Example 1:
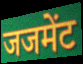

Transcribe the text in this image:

जजमेंट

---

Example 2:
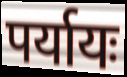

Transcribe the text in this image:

पर्यायः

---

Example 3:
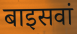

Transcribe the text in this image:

बाइसवां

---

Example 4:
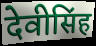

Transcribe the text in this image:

देवीसिंह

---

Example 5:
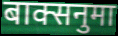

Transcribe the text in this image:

बाक्सनुमा